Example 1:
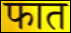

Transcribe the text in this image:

फात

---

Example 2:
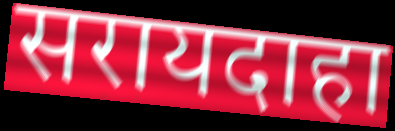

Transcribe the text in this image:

सरायदाहा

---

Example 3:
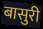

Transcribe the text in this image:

बासुरी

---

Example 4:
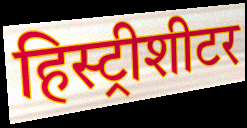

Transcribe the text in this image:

हिस्‍ट्रीशीटर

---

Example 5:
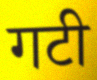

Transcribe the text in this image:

गटी